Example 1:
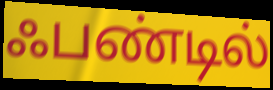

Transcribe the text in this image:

ஃபண்டில்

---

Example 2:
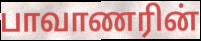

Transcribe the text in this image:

பாவாணரின்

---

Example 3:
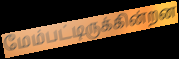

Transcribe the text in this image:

மேம்பட்டிருக்கின்றன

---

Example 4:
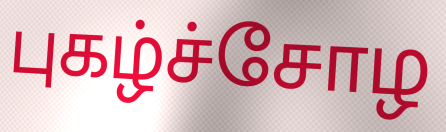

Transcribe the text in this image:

புகழ்ச்சோழ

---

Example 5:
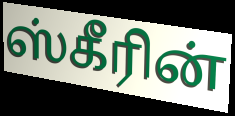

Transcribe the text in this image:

ஸ்கீரின்